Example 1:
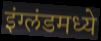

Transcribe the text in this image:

इंग्लंडमध्ये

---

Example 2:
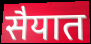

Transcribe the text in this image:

सैयात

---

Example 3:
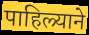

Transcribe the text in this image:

पाहिल्याने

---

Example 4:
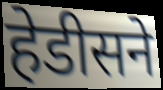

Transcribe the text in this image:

हेडीसने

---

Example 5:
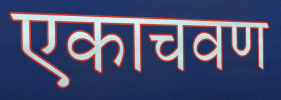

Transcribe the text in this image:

एकाचवण